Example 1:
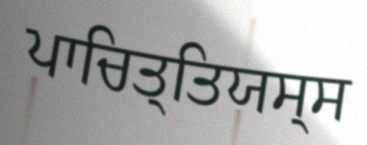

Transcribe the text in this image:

ਪਾਚਿਤ੍ਤਿਯਸ੍ਸ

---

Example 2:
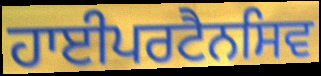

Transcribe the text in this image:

ਹਾਈਪਰਟੈਨਸਿਵ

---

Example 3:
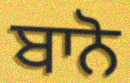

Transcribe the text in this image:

ਬਾਨੋ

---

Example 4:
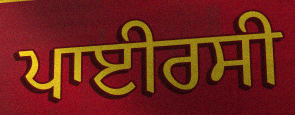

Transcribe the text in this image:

ਪਾਈਰਸੀ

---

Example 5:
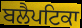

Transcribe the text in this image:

ਬਲੈਪਟਿਕਾ